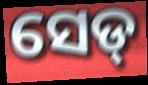
ସେଡ୍